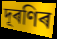
দূৰণিৰ